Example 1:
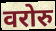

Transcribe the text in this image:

वरोरु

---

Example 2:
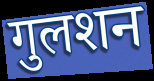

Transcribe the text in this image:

गुलशन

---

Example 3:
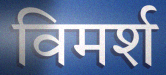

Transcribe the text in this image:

विमर्श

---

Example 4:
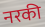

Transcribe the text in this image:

नरकी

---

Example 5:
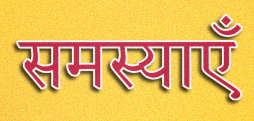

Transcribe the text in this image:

समस्याएँ